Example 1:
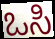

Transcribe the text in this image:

ಒಸಿ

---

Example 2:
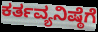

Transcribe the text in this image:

ಕರ್ತವ್ಯನಿಷ್ಠೆಗೆ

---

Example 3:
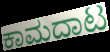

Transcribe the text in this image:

ಕಾಮದಾಟ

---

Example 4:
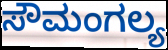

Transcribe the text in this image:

ಸೌಮಂಗಲ್ಯ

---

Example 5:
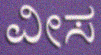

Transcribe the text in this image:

ವೀಸ